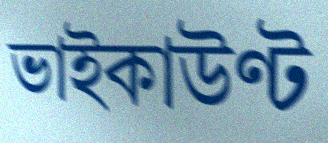
ভাইকাউণ্ট